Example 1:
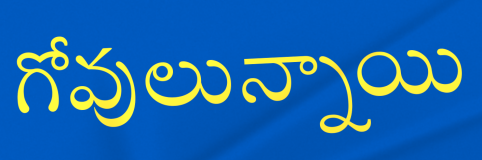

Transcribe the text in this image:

గోవులున్నాయి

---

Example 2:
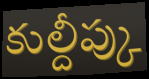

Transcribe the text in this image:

కుల్దీప్కు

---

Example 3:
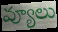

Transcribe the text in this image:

వ్యూలు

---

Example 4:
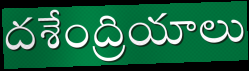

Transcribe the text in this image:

దశేంద్రియాలు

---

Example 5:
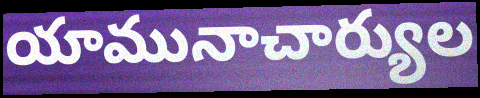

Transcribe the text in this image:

యామునాచార్యుల